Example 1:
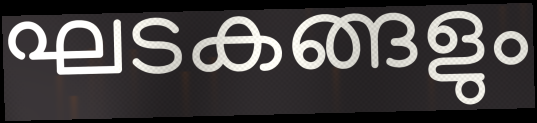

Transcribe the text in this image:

ഘടകങ്ങളും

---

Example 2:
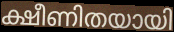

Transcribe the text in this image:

ക്ഷീണിതയായി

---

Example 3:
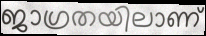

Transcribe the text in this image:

ജാഗ്രതയിലാണ്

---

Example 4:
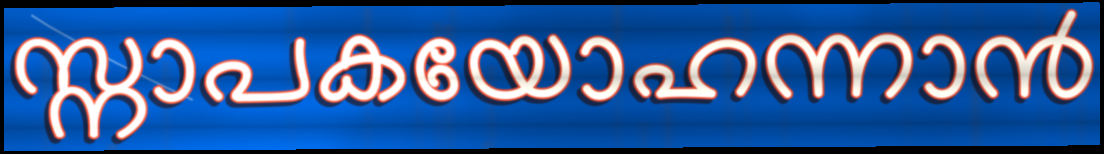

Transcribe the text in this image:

സ്നാപകയോഹന്നാൻ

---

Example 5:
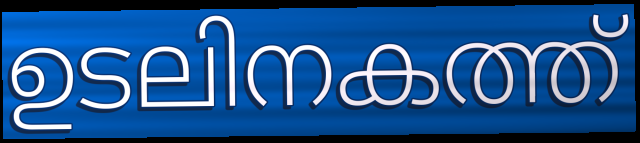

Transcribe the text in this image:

ഉടലിനകത്ത്